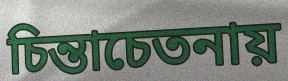
চিন্তাচেতনায়